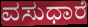
ವಸುಧಾರೆ